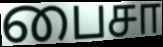
பைசா